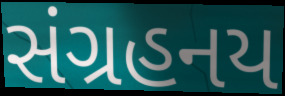
સંગ્રહનય